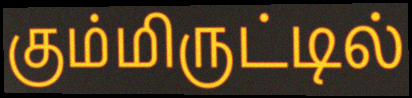
கும்மிருட்டில்